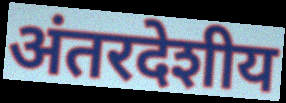
अंतरदेशीय